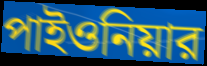
পাইওনিয়ার